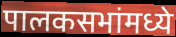
पालकसभांमध्ये